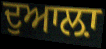
ਦੁਆਲ਼ਾ